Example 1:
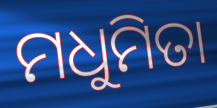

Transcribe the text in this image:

ମଧୁମିତା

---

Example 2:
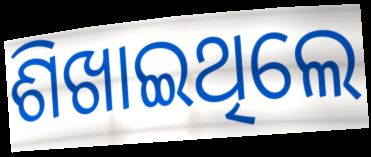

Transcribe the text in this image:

ଶିଖାଇଥିଲେ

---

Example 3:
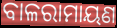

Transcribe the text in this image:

ବାଳରାମାୟଣ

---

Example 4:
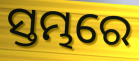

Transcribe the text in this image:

ସ୍ତମ୍ଭରେ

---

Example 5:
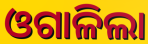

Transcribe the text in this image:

ଓଗାଳିଲା